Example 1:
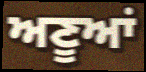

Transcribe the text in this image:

ਅਣੂਆਂ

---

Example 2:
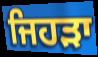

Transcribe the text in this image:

ਜਿਹੜਾ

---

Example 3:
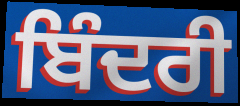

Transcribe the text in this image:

ਬਿੰਦਰੀ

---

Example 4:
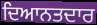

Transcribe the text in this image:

ਦਿਆਨਤਦਾਰ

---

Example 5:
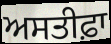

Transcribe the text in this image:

ਅਸਤੀਫ਼ਾ